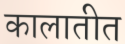
कालातीत